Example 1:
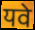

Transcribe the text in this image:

यवे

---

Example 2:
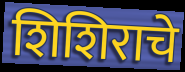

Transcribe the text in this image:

शिशिराचे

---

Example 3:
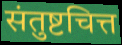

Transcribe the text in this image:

संतुष्टचित्त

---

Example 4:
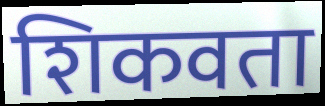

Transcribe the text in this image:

शिकवता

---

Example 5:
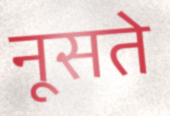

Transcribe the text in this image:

नूसते